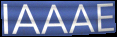
IAAAE